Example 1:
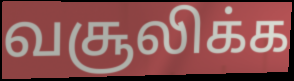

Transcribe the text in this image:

வசூலிக்க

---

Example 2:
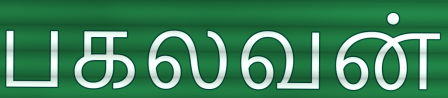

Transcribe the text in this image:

பகலவன்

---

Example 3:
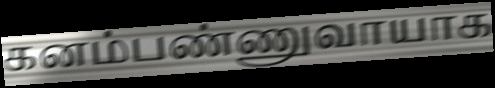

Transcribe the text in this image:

கனம்பண்ணுவாயாக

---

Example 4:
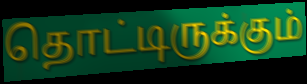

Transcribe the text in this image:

தொட்டிருக்கும்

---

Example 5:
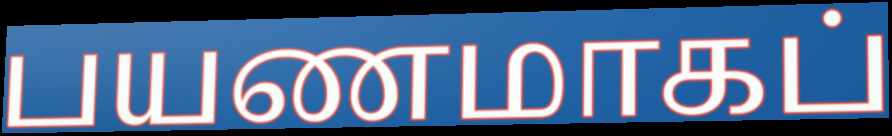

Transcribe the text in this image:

பயணமாகப்